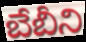
బేబీని